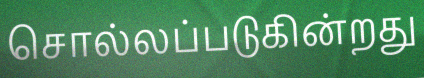
சொல்லப்படுகின்றது